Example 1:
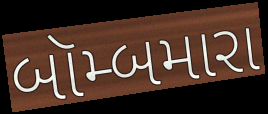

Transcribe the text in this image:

બૉમ્બમારા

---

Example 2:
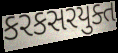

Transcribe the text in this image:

કરકસરયુક્ત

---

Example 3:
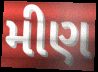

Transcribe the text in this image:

મીણ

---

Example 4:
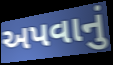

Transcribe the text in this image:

અપવાનું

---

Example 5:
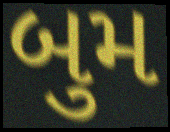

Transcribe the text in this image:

બુમ